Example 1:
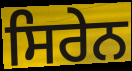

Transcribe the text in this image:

ਸਿਰੇਨ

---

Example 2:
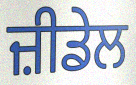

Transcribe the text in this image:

ਜ਼ੀਡੇਲ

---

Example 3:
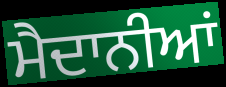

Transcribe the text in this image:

ਮੈਦਾਨੀਆਂ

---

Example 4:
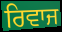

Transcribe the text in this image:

ਰਿਵਾਜ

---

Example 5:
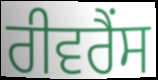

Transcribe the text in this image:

ਰੀਵਰੈਂਸ